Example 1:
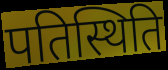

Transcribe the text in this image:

पतिस्थिति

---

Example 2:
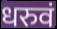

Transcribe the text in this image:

धरुवं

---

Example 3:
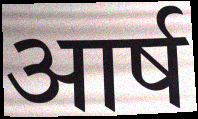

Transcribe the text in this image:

आर्ष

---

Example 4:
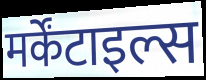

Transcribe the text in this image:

मर्केंटाइल्स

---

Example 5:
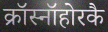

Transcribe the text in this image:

क्रॉस्नॉहोरकै